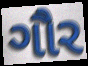
ગૌર